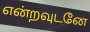
என்றவுடனே